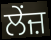
ਲੇਂਜ਼